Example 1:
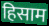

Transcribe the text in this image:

हिसाम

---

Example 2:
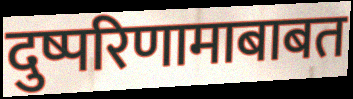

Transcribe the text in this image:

दुष्परिणामाबाबत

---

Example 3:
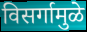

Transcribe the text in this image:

विसर्गामुळे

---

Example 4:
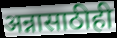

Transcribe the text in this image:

अन्नासाठीही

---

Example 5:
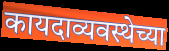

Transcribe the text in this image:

कायदाव्यवस्थेच्या